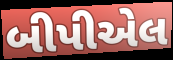
બીપીએલ